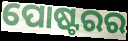
ପୋଷ୍ଟରର